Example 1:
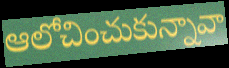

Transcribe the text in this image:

ఆలోచించుకున్నావా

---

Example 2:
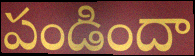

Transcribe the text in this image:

పండిందా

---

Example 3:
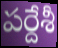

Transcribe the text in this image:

పర్దేశీ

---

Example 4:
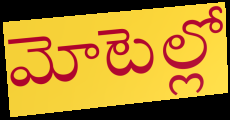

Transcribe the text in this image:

మోటెల్లో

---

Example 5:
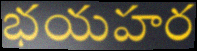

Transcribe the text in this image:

భయహర